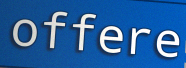
offere